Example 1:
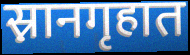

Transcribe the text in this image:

स्नानगृहात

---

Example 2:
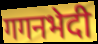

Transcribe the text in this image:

गगनभेदी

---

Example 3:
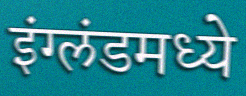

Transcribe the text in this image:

इंग्लंडमध्ये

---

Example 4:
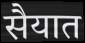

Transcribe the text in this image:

सैयात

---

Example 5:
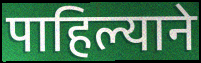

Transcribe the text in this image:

पाहिल्याने